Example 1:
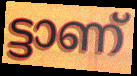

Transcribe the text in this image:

ട്ടാണ്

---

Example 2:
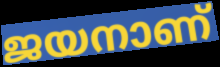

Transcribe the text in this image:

ജയനാണ്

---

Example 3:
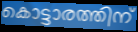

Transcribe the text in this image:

കൊട്ടാരത്തിന്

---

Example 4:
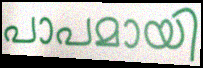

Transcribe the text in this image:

പാപമായി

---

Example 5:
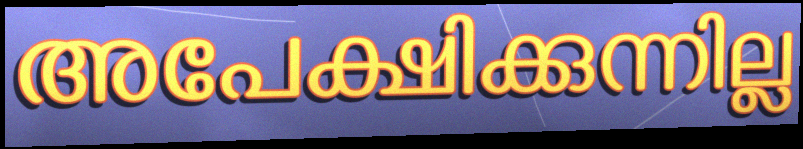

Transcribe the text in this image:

അപേക്ഷിക്കുന്നില്ല